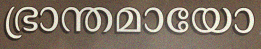
ഭ്രാന്തമായോ